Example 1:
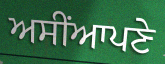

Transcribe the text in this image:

ਅਸੀਂਆਪਣੇ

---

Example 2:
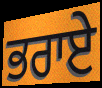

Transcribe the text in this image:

ਭਰਾਏ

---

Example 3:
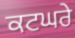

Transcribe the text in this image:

ਕਟਘਰੇ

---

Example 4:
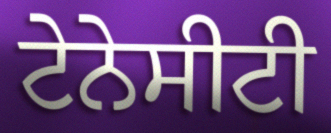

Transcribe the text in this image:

ਟੇਨੇਸੀਟੀ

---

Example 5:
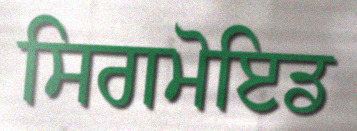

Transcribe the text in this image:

ਸਿਗਮੋਇਡ